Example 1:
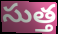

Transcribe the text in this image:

సుత్త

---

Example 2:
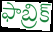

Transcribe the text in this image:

ఫాబ్రిక్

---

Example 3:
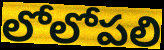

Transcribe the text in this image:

లోలోపలి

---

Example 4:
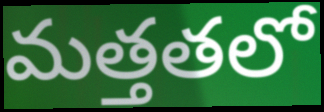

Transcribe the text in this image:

మత్తతలో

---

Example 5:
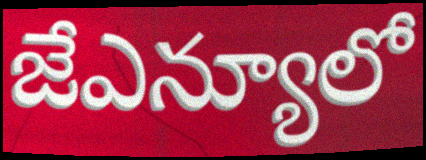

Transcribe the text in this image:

జేఎన్యూలో